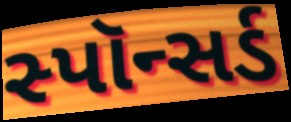
સ્પૉન્સર્ડ